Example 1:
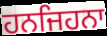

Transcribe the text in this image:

ਹਨਜਿਹਨਾ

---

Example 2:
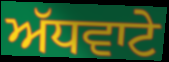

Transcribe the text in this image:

ਅੱਧਵਾਟੇ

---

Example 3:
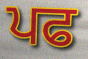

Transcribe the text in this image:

ਪਫ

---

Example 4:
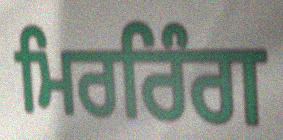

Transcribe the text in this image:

ਮਿਰਰਿੰਗ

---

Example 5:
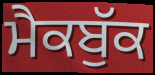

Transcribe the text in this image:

ਮੈਕਬੁੱਕ